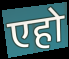
एहो